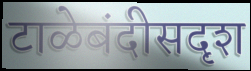
टाळेबंदीसदृश